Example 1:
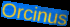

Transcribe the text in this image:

Orcinus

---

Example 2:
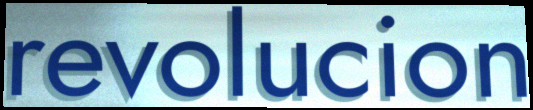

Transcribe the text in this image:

revolucion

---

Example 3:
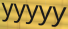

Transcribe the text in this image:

yyyyy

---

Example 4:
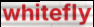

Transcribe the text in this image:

whitefly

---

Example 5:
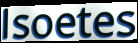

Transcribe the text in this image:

Isoetes